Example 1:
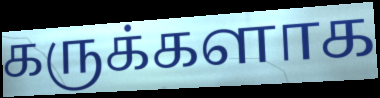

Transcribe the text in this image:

கருக்களாக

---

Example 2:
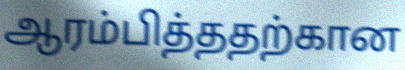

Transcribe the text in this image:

ஆரம்பித்ததற்கான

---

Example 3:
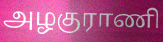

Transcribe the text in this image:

அழகுராணி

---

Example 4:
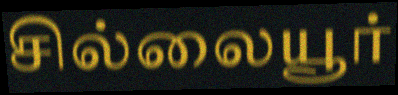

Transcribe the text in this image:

சில்லையூர்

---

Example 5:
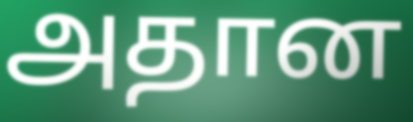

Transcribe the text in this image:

அதான